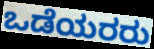
ಒಡೆಯರರು